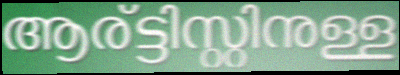
ആര്ട്ടിസ്റ്റിനുള്ള